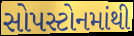
સોપસ્ટોનમાંથી